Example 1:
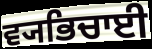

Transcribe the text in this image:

ਵ੍ਯਭਿਚਾਈ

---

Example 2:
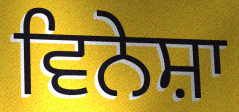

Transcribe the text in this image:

ਵਿਨੇਸ਼ਾ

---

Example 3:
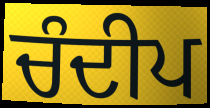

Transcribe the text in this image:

ਚੰਦੀਪ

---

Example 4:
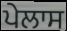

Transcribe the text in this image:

ਪੇਲਾਸ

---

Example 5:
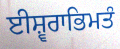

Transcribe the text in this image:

ਈਸ਼੍ਵਰਾਭਿਮਤੰ